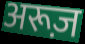
अरूज़